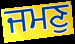
ਜਮਣੁ